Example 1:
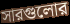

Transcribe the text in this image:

সারগুলোর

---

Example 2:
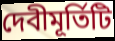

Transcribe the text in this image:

দেবীমূর্তিটি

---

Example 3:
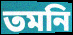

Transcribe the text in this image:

তমনি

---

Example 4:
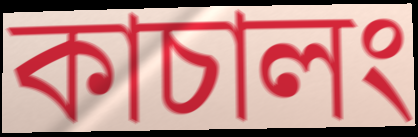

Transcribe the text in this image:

কাচালং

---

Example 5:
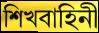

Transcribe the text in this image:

শিখবাহিনী